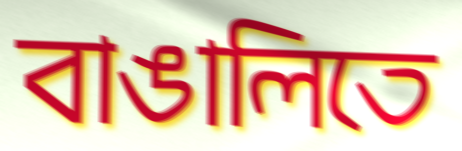
বাঙালিতে